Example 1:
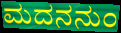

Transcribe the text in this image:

ಮದನನುಂ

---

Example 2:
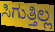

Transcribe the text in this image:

ಸಿಗುತ್ತಿಲ್ಲ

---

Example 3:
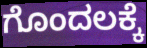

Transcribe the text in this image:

ಗೊಂದಲಕ್ಕೆ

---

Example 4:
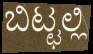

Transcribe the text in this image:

ಬಿಟ್ಟಲ್ಲಿ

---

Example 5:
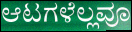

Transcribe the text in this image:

ಆಟಗಳೆಲ್ಲವೂ